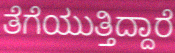
ತೆಗೆಯುತ್ತಿದ್ದಾರೆ